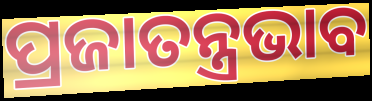
ପ୍ରଜାତନ୍ତ୍ରଭାବ